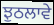
ਝੁਠਲਾਵੇ